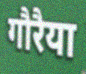
गौरैया